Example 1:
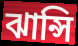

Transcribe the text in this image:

ঝান্সি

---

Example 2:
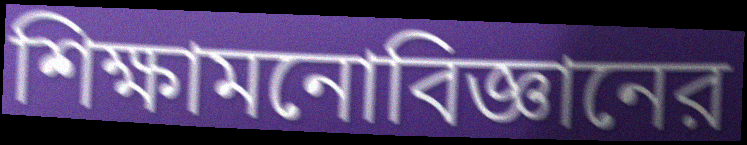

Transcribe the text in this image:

শিক্ষামনোবিজ্ঞানের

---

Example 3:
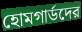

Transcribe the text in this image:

হোমগার্ডদের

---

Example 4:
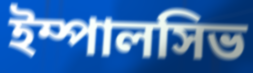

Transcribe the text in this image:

ইম্পালসিভ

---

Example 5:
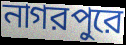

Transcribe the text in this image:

নাগরপুরে